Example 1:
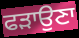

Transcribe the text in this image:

ਫੜਾਉਣਾ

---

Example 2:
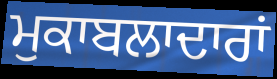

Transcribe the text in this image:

ਮੁਕਾਬਲਾਦਾਰਾਂ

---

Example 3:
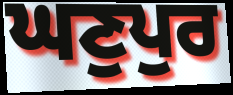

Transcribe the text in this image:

ਘਣੁਪੁਰ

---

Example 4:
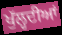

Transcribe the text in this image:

ਖੁੱਲ੍ਹਦੀਆਂ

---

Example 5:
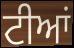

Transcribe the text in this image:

ਟੀਆਂ